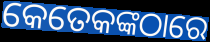
କେତେକଙ୍କଠାରେ